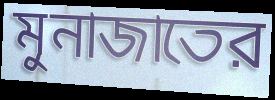
মুনাজাতের